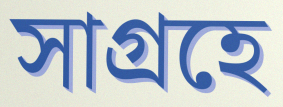
সাগ্রহে